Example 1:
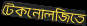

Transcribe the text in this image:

টেকনোলজিতে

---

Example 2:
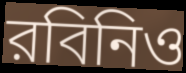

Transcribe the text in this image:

রবিনিও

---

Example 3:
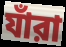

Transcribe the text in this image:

যাঁরা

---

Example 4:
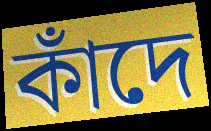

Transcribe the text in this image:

কাঁদে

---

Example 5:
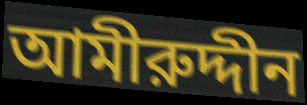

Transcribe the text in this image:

আমীরুদ্দীন